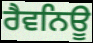
ਰੈਵਨਿਊ